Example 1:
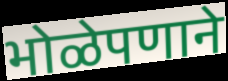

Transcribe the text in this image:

भोळेपणाने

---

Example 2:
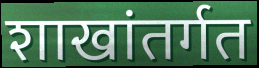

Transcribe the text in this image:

शाखांतर्गत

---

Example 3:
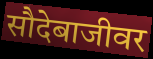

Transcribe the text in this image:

सौदेबाजीवर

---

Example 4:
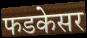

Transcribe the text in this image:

फडकेसर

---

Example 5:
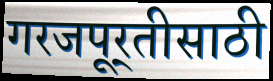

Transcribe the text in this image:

गरजपूर्तीसाठी